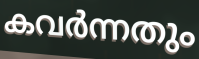
കവർന്നതും